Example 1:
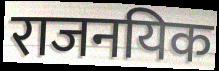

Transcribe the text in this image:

राजनयिक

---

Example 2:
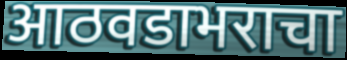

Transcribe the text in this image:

आठवडाभराचा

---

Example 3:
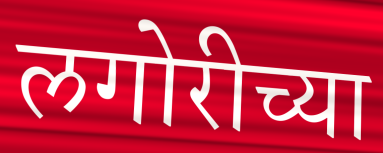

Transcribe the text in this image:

लगोरीच्या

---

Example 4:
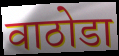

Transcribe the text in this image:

वाठोडा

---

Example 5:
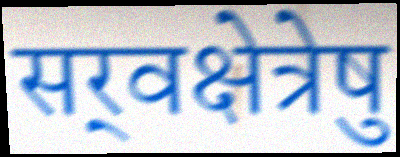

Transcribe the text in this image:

सर्वक्षेत्रेषु